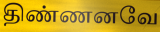
திண்ணனவே